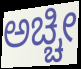
ಅಚ್ಚೀ